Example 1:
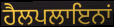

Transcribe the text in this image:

ਹੈਲਪਲਾਇਨਾਂ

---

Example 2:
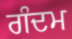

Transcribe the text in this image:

ਗੰਦਮ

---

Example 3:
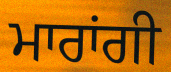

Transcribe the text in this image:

ਮਾਰਾਂਗੀ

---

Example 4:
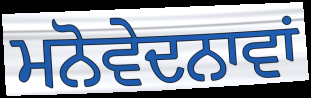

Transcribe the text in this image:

ਮਨੋਵੇਦਨਾਵਾਂ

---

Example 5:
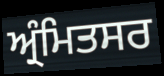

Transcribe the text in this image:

ਅ੍ਰੰਮਿਤਸਰ